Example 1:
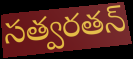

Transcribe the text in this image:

సత్వరతన్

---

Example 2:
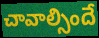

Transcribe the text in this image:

చావాల్సిందే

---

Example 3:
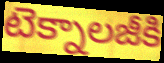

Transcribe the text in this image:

టెక్నాలజీకి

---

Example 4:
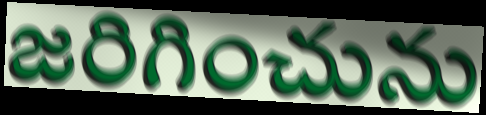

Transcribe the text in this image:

జరిగించును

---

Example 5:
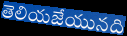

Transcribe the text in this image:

తెలియజేయునది